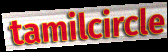
tamilcircle